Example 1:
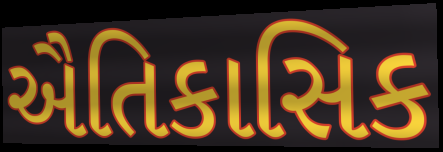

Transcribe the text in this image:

ઐતિકાસિક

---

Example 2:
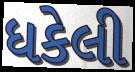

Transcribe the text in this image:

ધકેલી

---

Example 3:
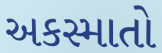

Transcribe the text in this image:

અકસ્માતો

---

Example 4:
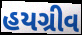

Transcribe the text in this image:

હયગ્રીવ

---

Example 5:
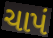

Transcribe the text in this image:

ચાપં